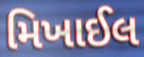
મિખાઈલ